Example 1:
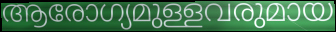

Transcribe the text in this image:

ആരോഗ്യമുള്ളവരുമായ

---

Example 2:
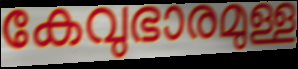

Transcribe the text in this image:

കേവുഭാരമുള്ള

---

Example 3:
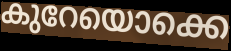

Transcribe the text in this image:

കുറേയൊക്കെ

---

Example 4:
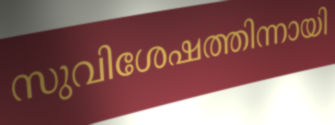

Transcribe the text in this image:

സുവിശേഷത്തിന്നായി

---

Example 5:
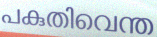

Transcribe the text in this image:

പകുതിവെന്ത